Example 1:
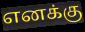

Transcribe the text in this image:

எனக்கு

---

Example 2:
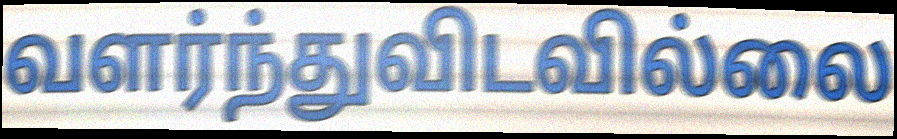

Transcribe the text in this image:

வளர்ந்துவிடவில்லை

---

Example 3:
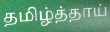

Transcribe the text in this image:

தமிழ்த்தாய்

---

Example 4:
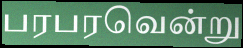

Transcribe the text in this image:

பரபரவென்று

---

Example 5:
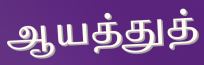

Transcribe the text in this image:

ஆயத்துத்